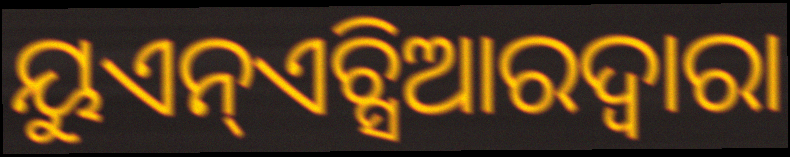
ୟୁଏନ୍ଏଚ୍ସିଆରଦ୍ୱାରା